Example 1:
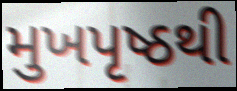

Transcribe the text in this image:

મુખપૃષ્ઠથી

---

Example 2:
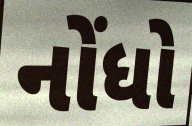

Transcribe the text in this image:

નોંધો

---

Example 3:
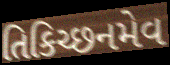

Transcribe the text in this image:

તિકિચ્છનમેવ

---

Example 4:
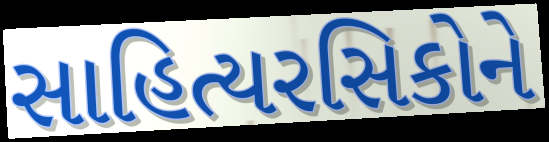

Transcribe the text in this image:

સાહિત્યરસિકોને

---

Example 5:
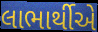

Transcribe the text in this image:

લાભાર્થીએ